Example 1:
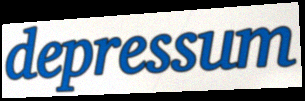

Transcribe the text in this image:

depressum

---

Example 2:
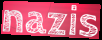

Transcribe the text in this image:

nazis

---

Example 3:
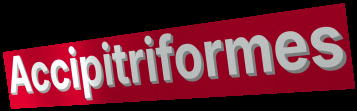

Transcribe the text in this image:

Accipitriformes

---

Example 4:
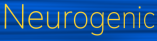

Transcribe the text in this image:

Neurogenic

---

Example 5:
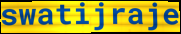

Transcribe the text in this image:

swatijraje